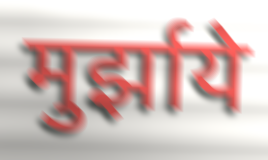
मुर्झाये